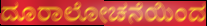
ದೂರಾಲೋಚನೆಯಿಂದ